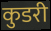
कुडरी